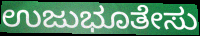
ಉಜುಭೂತೇಸು